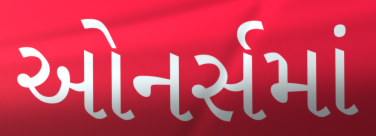
ઓનર્સમાં